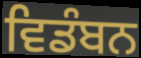
ਵਿਡੰਬਨ